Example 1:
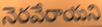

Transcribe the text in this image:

నెరవేరాయని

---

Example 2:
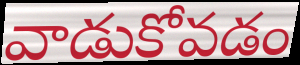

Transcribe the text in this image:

వాడుకోవడం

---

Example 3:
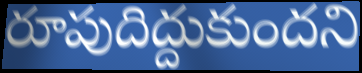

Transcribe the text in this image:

రూపుదిద్దుకుందని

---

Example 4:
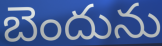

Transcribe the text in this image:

బెందును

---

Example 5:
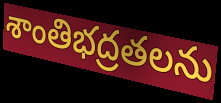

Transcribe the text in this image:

శాంతిభద్రతలను